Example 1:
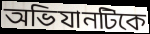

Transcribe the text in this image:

অভিযানটিকে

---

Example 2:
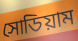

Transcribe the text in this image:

সোডিয়াম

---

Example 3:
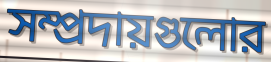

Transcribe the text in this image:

সম্প্রদায়গুলোর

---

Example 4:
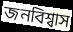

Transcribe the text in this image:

জনবিশ্বাস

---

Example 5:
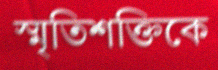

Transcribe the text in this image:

স্মৃতিশক্তিকে